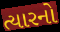
ત્યારનો